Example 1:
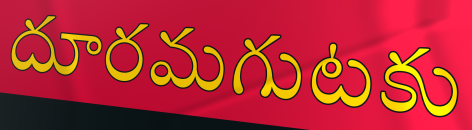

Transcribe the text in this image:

దూరమగుటకు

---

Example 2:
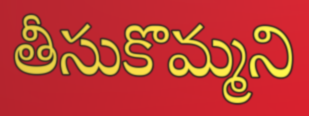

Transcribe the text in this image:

తీసుకొమ్మని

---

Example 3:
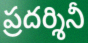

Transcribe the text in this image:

ప్రదర్శినీ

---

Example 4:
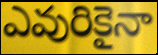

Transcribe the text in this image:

ఎవురికైనా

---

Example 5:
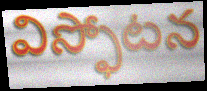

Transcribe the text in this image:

విస్ఫోటన